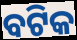
ବଟିକ